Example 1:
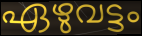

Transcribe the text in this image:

ഏഴുവട്ടം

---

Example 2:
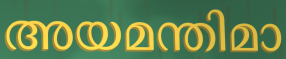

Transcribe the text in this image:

അയമന്തിമാ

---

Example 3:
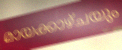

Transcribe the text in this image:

മായക്കാഴ്ചയും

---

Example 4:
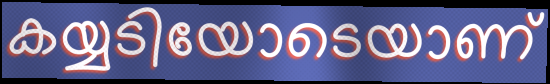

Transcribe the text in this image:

കയ്യടിയോടെയാണ്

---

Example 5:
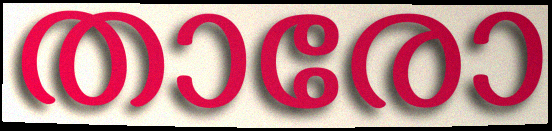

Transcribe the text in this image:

താരോ